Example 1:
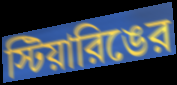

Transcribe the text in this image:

স্টিয়ারিঙের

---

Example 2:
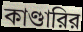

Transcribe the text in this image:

কাণ্ডারির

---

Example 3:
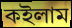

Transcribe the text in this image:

কইলাম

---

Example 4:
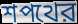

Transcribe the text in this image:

শপথের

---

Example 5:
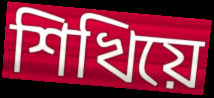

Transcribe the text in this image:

শিখিয়ে